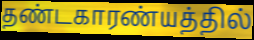
தண்டகாரண்யத்தில்